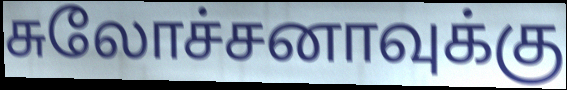
சுலோச்சனாவுக்கு